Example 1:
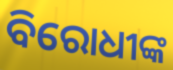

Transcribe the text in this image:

ବିରୋଧୀଙ୍କ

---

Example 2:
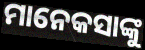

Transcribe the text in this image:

ମାନେକସାଙ୍କୁ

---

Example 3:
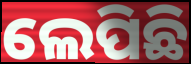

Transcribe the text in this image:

ଲେପିଛି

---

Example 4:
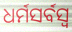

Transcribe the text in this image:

ଧର୍ମସର୍ବସ୍ୱ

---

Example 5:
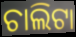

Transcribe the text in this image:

ଚାଲିଟା